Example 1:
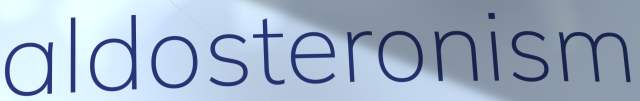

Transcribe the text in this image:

aldosteronism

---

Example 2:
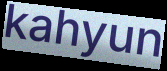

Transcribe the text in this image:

kahyun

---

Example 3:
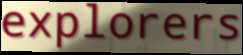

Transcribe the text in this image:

explorers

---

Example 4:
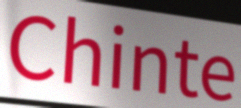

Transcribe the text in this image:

Chinte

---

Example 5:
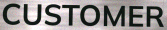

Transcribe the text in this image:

CUSTOMER